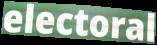
electoral